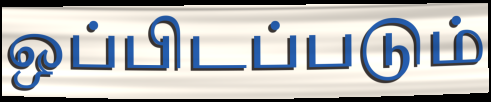
ஒப்பிடப்படும்